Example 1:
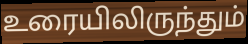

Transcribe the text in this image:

உரையிலிருந்தும்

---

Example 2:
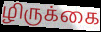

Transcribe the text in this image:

ழிருக்கை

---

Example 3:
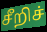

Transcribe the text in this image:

சீறிச்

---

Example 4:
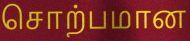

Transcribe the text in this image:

சொற்பமான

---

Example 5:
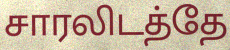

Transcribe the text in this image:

சாரலிடத்தே